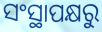
ସଂସ୍ଥାପକ୍ଷରୁ